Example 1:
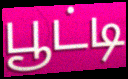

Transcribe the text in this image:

பூட்டி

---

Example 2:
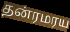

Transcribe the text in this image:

தன்ரமரய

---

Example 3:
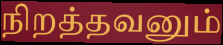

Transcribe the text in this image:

நிறத்தவனும்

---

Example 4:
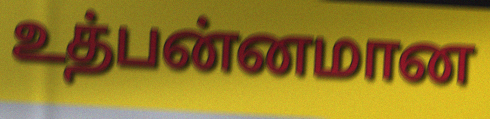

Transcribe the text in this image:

உத்பன்னமான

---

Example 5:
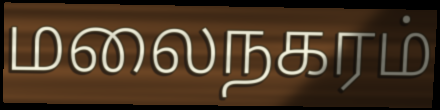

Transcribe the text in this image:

மலைநகரம்